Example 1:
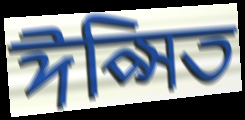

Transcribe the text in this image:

ঈপ্সিত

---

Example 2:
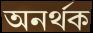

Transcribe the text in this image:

অনৰ্থক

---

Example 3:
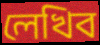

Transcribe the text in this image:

লেখিব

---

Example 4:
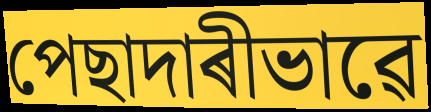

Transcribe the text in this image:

পেছাদাৰীভাৱে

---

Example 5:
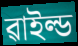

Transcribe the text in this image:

ৱাইল্ড